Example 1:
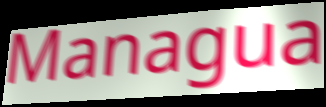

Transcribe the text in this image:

Managua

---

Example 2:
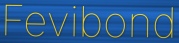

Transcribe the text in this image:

Fevibond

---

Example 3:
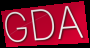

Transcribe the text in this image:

GDA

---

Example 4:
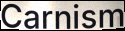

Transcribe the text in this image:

Carnism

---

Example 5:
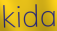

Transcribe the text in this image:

kida